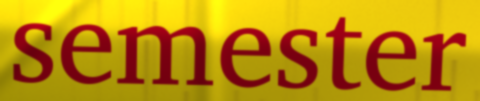
semester